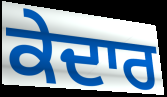
ਕੇਦਾਰ